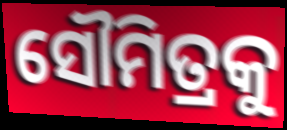
ସୌମିତ୍ରକୁ